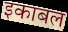
इकाबल